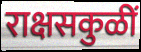
राक्षसकुळीं